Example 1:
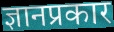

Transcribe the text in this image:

ज्ञानप्रकार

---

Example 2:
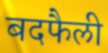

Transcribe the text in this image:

बदफैली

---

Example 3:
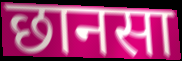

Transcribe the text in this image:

छानसा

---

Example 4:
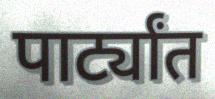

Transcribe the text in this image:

पार्ट्यांत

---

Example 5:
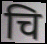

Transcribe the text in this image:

चि